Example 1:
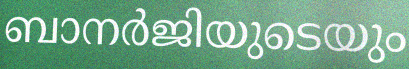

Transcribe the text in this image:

ബാനർജിയുടെയും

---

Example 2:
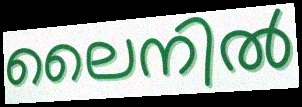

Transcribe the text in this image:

ലൈനിൽ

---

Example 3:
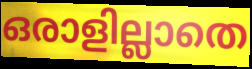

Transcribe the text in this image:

ഒരാളില്ലാതെ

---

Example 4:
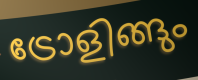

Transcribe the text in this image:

ട്രോളിങ്ങും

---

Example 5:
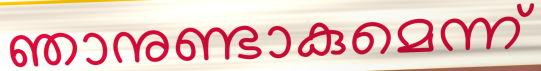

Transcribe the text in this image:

ഞാനുണ്ടാകുമെന്ന്